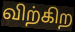
விற்கிற